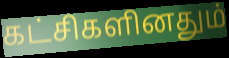
கட்சிகளினதும்